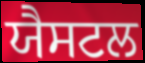
ਯੈਸਟਲ